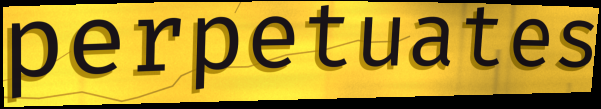
perpetuates